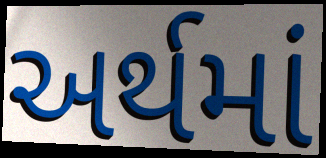
અર્થમાં